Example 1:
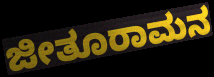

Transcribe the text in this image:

ಜೀತೂರಾಮನ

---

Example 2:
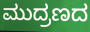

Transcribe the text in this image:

ಮುದ್ರಣದ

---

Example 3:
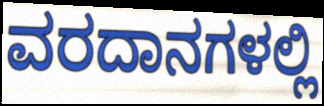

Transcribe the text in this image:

ವರದಾನಗಳಲ್ಲಿ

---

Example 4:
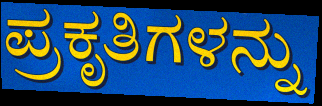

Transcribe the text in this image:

ಪ್ರಕೃತಿಗಳನ್ನು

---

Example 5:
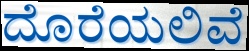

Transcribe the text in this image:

ದೊರೆಯಲಿವೆ